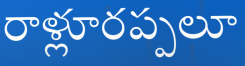
రాళ్లూరప్పలూ